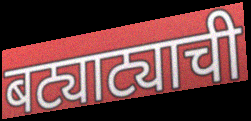
बट्याट्याची